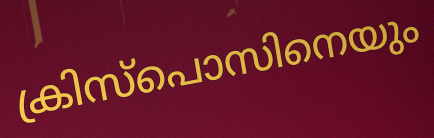
ക്രിസ്പൊസിനെയും